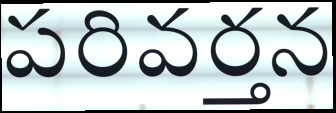
పరివర్తన